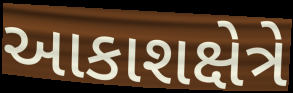
આકાશક્ષેત્રે